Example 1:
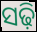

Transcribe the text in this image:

ସଢ଼ି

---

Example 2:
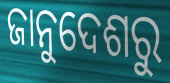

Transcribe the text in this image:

ଜାନୁଦେଶରୁ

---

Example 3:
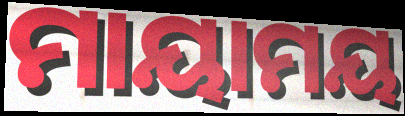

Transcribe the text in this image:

ମାୟାମୟ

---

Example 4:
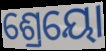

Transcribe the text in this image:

ଶ୍ରେୟୋ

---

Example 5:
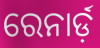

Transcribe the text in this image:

ରେନାର୍ଡ଼